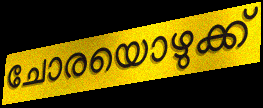
ചോരയൊഴുക്ക്